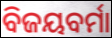
ବିଜୟବର୍ମା